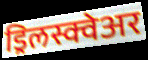
ड्रिलस्क्वेअर